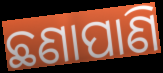
ଛଣାପାଣି